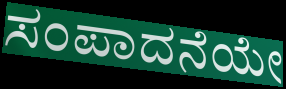
ಸಂಪಾದನೆಯೇ